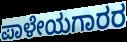
ಪಾಳೇಯಗಾರರ